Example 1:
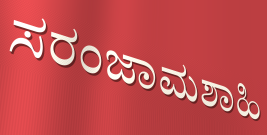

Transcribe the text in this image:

ಸರಂಜಾಮಶಾಹಿ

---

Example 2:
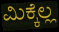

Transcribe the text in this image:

ಮಿಕ್ಕೆಲ್ಲ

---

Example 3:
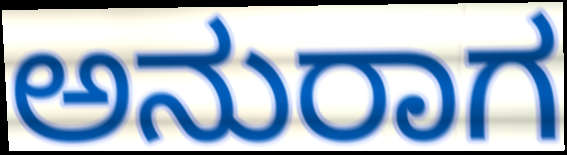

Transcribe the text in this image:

ಅನುರಾಗ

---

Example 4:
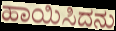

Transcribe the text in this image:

ಹಾಯಿಸಿದನು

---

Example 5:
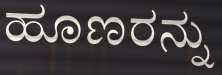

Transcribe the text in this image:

ಹೂಣರನ್ನು